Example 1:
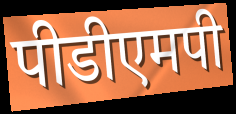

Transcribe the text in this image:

पीडीएमपी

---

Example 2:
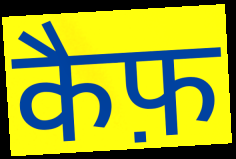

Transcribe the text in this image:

कैफ़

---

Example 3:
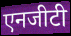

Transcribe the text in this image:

एनजीटी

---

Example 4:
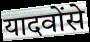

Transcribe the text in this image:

यादवोंसे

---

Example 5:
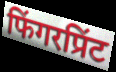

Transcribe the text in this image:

फिंगरप्रिंट